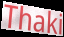
Thaki